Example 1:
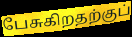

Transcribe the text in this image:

பேசுகிறதற்குப்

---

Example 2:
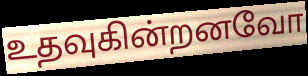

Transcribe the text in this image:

உதவுகின்றனவோ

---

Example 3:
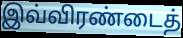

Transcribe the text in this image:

இவ்விரண்டைத்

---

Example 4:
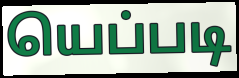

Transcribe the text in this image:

யெப்படி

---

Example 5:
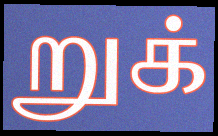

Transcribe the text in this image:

றுக்